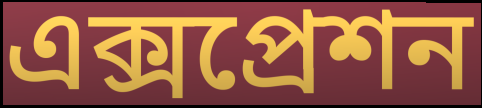
এক্সপ্রেশন